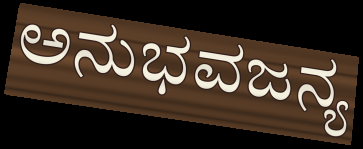
ಅನುಭವಜನ್ಯ